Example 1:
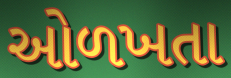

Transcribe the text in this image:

ઓળખતા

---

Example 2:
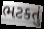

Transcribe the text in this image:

ભટકતું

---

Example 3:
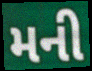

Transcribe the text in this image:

મની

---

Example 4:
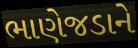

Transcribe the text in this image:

ભાણેજડાને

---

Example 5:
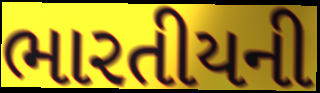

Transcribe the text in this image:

ભારતીયની